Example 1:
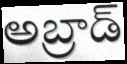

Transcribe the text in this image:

అబ్రాడ్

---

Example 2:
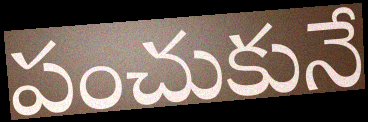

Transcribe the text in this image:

పంచుకునే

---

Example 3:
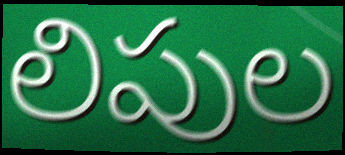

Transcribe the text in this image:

లిపుల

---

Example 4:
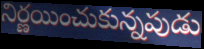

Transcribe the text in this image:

నిర్ణయించుకున్నపుడు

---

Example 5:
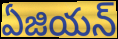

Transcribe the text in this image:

ఏజియన్